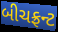
બીચફ્રન્ટ